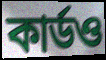
কার্ডও